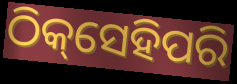
ଠିକ୍‌ସେହିପରି